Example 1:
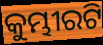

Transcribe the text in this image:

କୁମ୍ଭୀରଟି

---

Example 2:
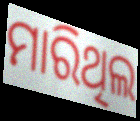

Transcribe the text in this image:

ମାରିଥିଲ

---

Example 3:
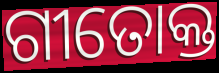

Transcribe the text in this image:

ଗୀତୋକ୍ତ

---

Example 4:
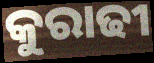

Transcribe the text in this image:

କୁରାଢୀ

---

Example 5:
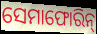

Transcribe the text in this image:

ସେମାଫୋରିନ୍